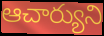
ఆచార్యుని